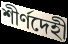
শীর্ণদেহী